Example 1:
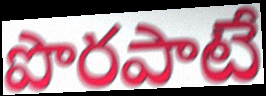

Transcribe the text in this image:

పొరపాటే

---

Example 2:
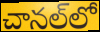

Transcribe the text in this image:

చానల్‌లో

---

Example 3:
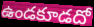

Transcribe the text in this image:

ఉండకూడదో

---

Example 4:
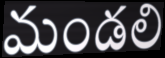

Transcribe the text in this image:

మండలి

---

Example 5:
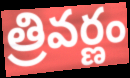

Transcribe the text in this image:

త్రివర్ణం